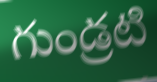
గుండ్రటి